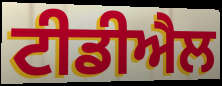
ਟੀਡੀਐਲ